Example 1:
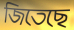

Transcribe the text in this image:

জিতেছে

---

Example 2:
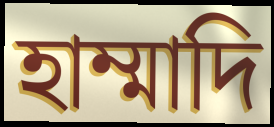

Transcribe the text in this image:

হাম্মাদি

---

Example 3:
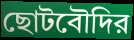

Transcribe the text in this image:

ছোটবৌদির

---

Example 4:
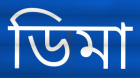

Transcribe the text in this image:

ডিমা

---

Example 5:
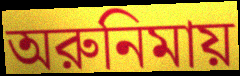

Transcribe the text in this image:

অরুনিমায়